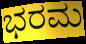
ಭರಮ